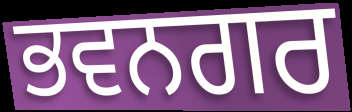
ਭਵਨਗਰ